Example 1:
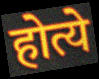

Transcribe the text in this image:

होत्ये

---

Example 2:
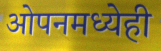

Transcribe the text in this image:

ओपनमध्येही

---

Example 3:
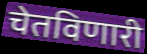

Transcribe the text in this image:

चेतविणारी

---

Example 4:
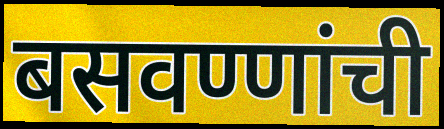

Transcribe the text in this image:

बसवण्णांची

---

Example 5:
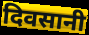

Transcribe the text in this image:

दिवसानी